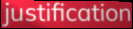
justification